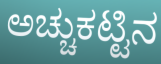
ಅಚ್ಚುಕಟ್ಟಿನ